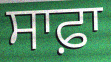
ਸਾਫ਼ਾ